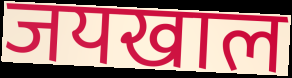
जयखाल